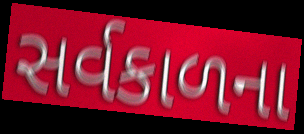
સર્વકાળના